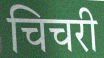
चिचरी